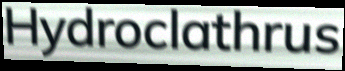
Hydroclathrus